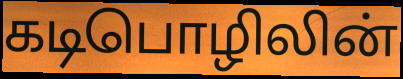
கடிபொழிலின்